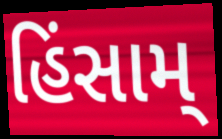
હિંસામ્